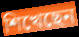
শিখেছেন